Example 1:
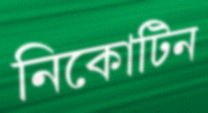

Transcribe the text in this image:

নিকোটিন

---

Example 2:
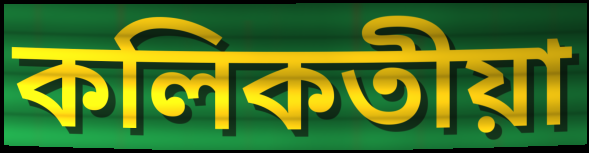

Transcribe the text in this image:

কলিকতীয়া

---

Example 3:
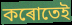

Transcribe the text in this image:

কৰোতেই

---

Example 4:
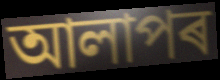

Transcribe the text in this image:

আলাপৰ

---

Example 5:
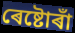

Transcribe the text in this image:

ৰেষ্টোৰাঁ